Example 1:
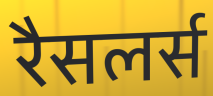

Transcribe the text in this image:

रैसलर्स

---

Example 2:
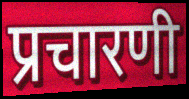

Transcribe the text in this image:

प्रचारणी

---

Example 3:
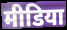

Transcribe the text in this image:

मीडिया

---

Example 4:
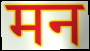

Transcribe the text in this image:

मन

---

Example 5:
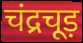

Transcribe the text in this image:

चंद्रचूड़